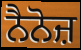
ਨੈਨੋਜ਼